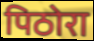
पिठोरा